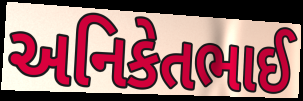
અનિકેતભાઈ